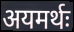
अयमर्थः